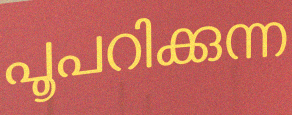
പൂപറിക്കുന്ന